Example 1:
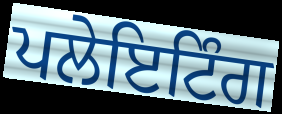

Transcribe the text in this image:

ਪਲੇਇਟਿੰਗ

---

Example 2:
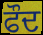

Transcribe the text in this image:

ਫੌਦ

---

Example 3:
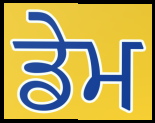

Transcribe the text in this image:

ਡੇਮ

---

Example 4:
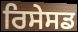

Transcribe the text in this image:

ਰਿਸੇਸਡ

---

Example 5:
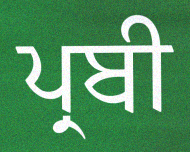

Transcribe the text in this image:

ਪ੍ਰਬੀ